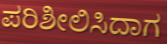
ಪರಿಶೀಲಿಸಿದಾಗ